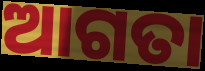
ଆଗତା